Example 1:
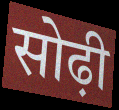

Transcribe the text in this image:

सोढ़ी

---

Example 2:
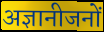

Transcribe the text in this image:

अज्ञानीजनों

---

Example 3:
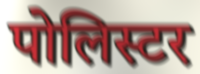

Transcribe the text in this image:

पोलिस्टर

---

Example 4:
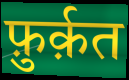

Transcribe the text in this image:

फ़ुर्क़त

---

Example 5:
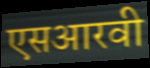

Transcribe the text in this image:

एसआरवी